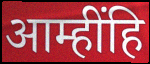
आम्हींहि